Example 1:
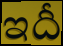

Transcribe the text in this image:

ఇదీ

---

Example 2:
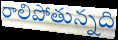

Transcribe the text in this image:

రాలిపోతున్నది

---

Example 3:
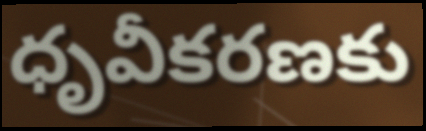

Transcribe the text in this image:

ధృవీకరణకు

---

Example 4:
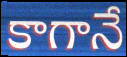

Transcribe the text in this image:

కాగానే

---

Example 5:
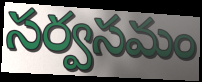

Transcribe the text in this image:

సర్వసమం